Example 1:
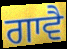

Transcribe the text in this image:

ਗਾਵੈ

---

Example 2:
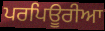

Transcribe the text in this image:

ਪਰਪਿਊਰੀਆ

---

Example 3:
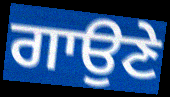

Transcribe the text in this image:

ਗਾਉਣੇ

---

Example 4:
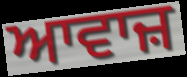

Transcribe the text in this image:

ਆਵਾਜ਼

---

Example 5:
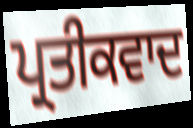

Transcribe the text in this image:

ਪ੍ਰਤੀਕਵਾਦ